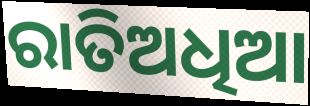
ରାତିଅଧିଆ